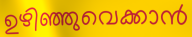
ഉഴിഞ്ഞുവെക്കാൻ